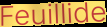
Feuillide